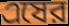
এষের